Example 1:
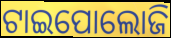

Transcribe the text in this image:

ଟାଇପୋଲୋଜି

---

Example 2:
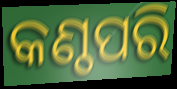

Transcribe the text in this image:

କଣ୍ଠପରି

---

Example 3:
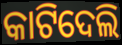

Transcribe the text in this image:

କାଟିଦେଲି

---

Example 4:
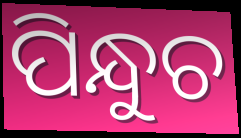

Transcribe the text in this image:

ପିନ୍ଧୁଚ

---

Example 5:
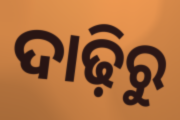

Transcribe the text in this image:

ଦାଢ଼ିରୁ